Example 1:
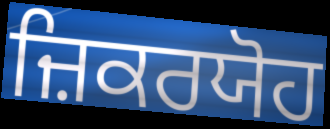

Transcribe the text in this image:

ਜ਼ਿਕਰਯੋਹ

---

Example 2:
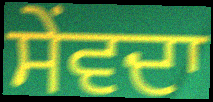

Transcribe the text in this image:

ਸੇਂਵਦਾ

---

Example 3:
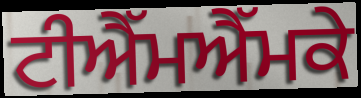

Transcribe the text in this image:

ਟੀਐੱਮਐੱਮਕੇ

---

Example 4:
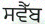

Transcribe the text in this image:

ਸਵੈੱਬ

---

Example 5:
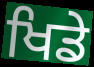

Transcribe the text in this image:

ਖਿਡੇ